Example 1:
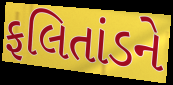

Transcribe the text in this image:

ફલિતાંડને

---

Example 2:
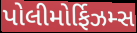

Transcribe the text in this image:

પોલીમોર્ફિઝમ્સ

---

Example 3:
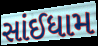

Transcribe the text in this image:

સાંઈધામ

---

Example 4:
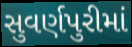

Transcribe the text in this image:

સુવર્ણપુરીમાં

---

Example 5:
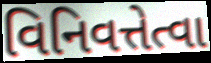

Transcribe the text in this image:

વિનિવત્તેત્વા